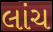
લાંચ